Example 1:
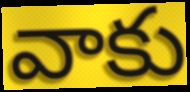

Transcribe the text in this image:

వాకు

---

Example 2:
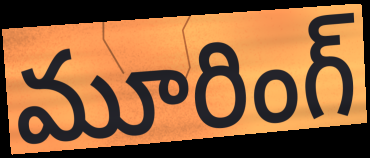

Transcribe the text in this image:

మూరింగ్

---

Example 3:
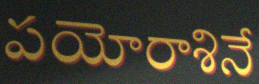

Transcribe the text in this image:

పయోరాశినే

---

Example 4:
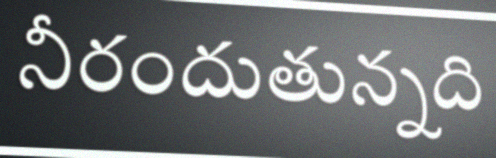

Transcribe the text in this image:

నీరందుతున్నది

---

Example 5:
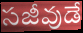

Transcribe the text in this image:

సజీవుడే